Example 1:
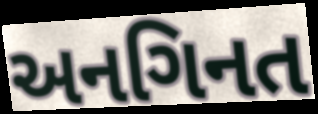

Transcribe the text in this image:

અનગિનત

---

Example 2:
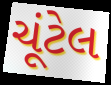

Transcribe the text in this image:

ચૂંટેલ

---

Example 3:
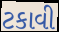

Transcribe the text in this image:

ટકાવી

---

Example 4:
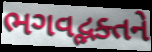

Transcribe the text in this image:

ભગવદ્ભક્તને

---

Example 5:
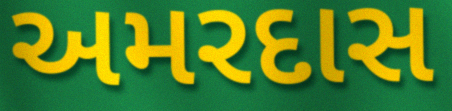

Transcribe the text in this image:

અમરદાસ